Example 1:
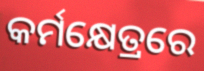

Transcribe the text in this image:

କର୍ମକ୍ଷେତ୍ରରେ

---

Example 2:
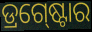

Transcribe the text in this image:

ଡ୍ରଗ୍‍ଷ୍ଟୋର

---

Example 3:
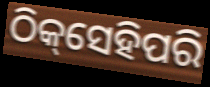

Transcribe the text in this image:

ଠିକ୍‌ସେହିପରି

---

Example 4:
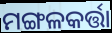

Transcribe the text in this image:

ମଙ୍ଗଳକର୍ତ୍ତା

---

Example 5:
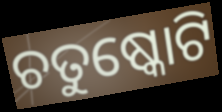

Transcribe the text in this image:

ଚତୁଷ୍କୋଟି